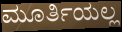
ಮೂರ್ತಿಯಲ್ಲ